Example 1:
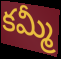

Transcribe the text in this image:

కమ్మీ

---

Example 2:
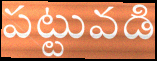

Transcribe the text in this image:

పట్టువడి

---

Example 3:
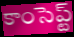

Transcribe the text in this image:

కాంసెప్ట్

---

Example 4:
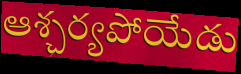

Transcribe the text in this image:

ఆశ్చర్యపోయేడు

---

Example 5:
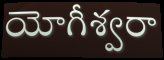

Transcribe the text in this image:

యోగీశ్వరా